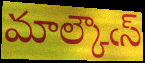
మాల్కౌఁస్